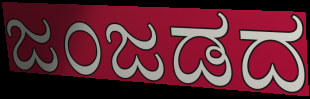
ಜಂಜಡದ